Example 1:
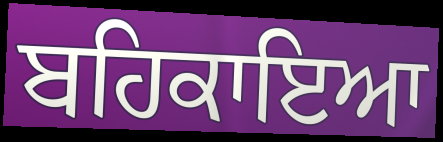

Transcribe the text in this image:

ਬਹਿਕਾਇਆ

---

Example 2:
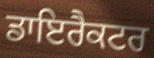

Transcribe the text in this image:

ਡਾਇਰੈਕਟਰ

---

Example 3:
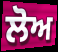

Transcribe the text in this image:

ਲੋਅ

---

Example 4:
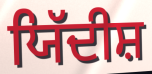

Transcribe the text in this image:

ਯਿੱਦੀਸ਼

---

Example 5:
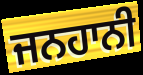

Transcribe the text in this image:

ਜਨਹਾਨੀ